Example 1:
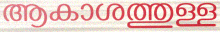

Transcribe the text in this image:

ആകാശത്തുള്ള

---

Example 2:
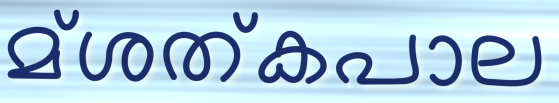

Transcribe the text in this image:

മ്ശത്കപാല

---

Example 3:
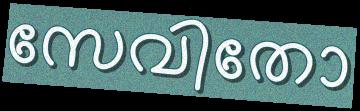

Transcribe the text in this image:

സേവിതോ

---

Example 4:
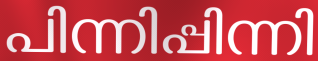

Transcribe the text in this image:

പിന്നിപ്പിന്നി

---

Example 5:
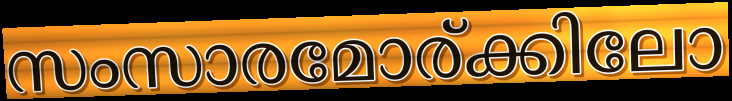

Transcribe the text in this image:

സംസാരമോര്ക്കിലോ